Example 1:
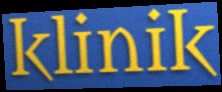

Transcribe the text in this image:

klinik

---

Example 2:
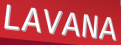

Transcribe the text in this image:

LAVANA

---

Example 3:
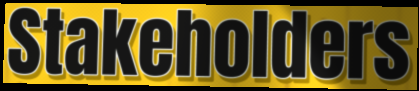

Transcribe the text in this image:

Stakeholders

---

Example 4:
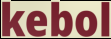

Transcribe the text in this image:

kebol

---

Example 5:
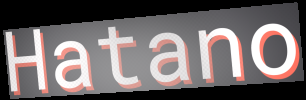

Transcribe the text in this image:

Hatano